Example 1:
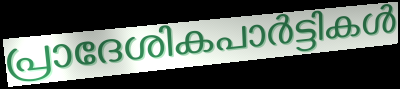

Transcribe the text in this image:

പ്രാദേശികപാർട്ടികൾ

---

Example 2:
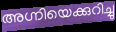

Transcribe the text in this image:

അഗ്നിയെക്കുറിച്ചു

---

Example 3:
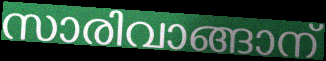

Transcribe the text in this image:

സാരിവാങ്ങാന്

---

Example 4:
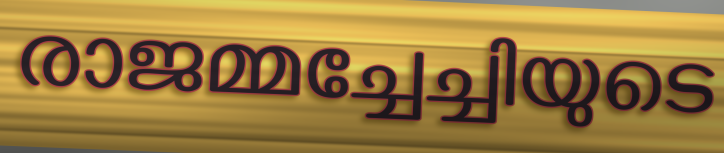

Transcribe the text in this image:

രാജമ്മച്ചേച്ചിയുടെ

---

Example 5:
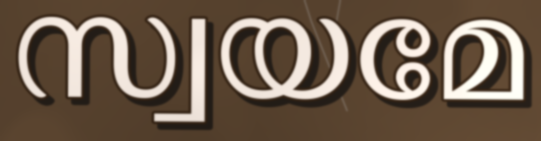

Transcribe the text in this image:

സ്വയമേ